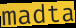
madta